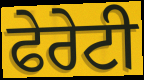
ਫੇਰੇਟੀ